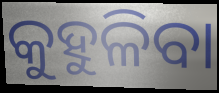
କୁହୁଳିବା